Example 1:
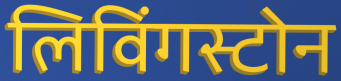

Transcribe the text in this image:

लिविंगस्टोन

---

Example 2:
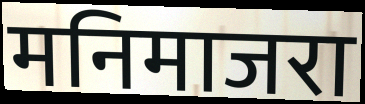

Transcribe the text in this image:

मनिमाजरा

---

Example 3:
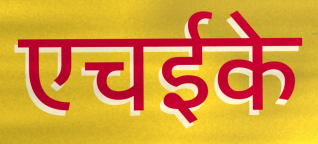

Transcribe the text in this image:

एचईके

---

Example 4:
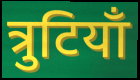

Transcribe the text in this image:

त्रुटियाँ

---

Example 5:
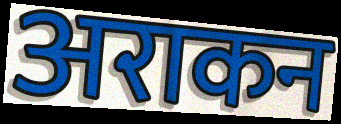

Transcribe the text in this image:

अराकन